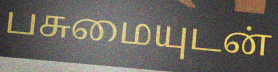
பசுமையுடன்